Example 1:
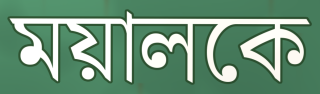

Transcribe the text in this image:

ময়ালকে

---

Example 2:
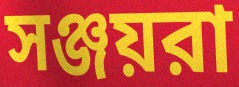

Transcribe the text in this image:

সঞ্জয়রা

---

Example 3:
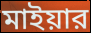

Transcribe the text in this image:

মাইয়ার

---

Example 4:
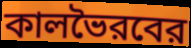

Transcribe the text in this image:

কালভৈরবের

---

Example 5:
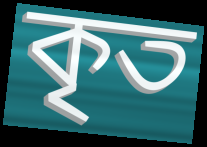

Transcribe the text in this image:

কৃত